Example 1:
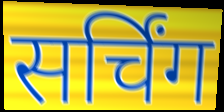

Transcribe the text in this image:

सर्चिंग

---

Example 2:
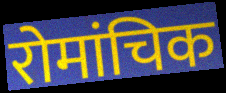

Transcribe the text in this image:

रोमांचिक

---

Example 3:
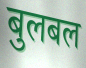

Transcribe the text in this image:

बुलबल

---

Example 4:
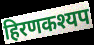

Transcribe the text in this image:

हिरणकश्यप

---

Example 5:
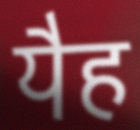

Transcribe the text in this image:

यैह